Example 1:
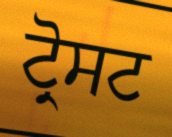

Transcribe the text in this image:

ਟ੍ਰੋਸਟ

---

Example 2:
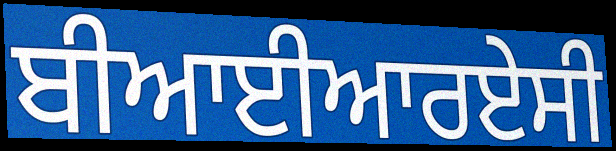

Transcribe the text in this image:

ਬੀਆਈਆਰਏਸੀ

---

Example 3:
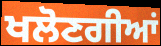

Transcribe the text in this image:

ਖਲੋਣਗੀਆਂ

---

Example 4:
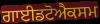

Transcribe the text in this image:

ਗਾਈਡਟੋਐਕਸਮ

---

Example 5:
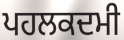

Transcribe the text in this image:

ਪਹਲਕਦਮੀ